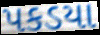
પકડયા